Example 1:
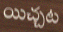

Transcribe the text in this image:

యిచ్చట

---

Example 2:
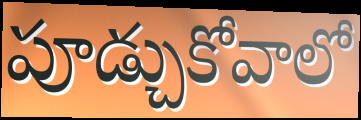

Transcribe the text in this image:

పూడ్చుకోవాలో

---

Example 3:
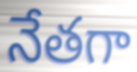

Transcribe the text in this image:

నేతగా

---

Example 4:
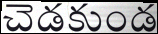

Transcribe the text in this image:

చెడకుండ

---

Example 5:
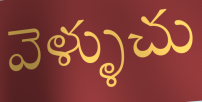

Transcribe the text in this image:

వెళ్ళుచు